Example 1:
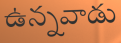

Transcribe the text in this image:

ఉన్నవాడు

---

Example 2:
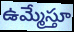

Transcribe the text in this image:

ఉమ్మేస్తూ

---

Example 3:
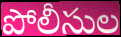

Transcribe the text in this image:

పోలీసుల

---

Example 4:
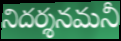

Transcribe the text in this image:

నిదర్శనమనీ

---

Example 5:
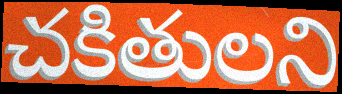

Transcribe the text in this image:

చకితులని